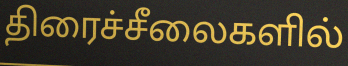
திரைச்சீலைகளில்